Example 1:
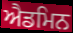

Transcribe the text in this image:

ਐਡਮਿਨ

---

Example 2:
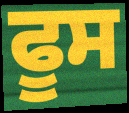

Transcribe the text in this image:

ਫੂਸ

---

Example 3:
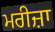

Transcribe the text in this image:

ਮਰੀਜ਼ਾ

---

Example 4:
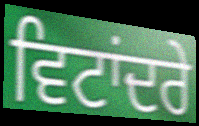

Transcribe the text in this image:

ਵਿਟਾਂਦਰੇ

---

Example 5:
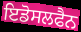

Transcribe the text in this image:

ਇਡੋਸਲਫੈਨ